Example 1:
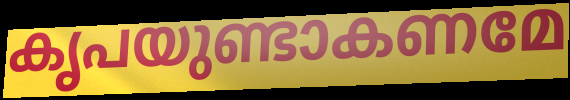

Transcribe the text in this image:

കൃപയുണ്ടാകണമേ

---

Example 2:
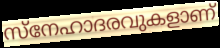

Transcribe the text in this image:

സ്നേഹാദരവുകളാണ്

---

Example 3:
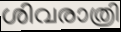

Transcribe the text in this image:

ശിവരാത്രി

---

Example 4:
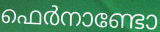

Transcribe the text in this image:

ഫെർനാണ്ടോ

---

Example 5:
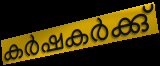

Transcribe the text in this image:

കർഷകർക്കു്